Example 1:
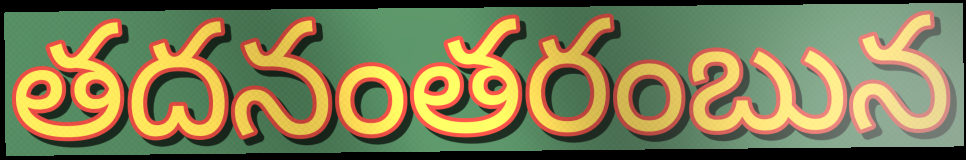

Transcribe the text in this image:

తదనంతరంబున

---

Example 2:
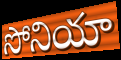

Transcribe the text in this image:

సోనియా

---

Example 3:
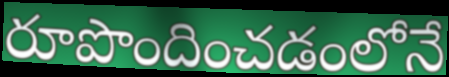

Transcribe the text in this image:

రూపొందించడంలోనే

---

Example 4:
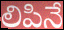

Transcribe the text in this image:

లిపినే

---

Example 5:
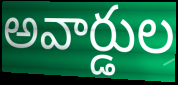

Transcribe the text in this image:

అవార్డుల